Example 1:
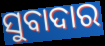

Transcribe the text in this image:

ସୁବାଦାର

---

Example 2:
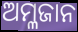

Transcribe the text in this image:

ଅମ୍ଳଜାନ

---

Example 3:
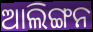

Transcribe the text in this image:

ଆଲିଙ୍ଗନ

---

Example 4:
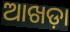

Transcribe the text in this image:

ଆଖଡ଼ା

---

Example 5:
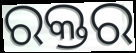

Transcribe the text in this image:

ରକ୍ତର